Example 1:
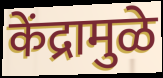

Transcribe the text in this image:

केंद्रामुळे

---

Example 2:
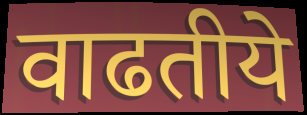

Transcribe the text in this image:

वाढतीये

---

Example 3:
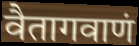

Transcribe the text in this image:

वैतागवाणं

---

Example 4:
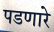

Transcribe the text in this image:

पडणारे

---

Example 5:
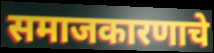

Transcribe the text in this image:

समाजकारणाचे